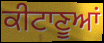
ਕੀਟਾਣੂਆਂ